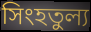
সিংহতুল্য